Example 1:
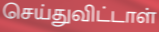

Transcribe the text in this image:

செய்துவிட்டாள்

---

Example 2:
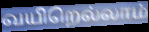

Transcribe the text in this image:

வயிறெல்லாம்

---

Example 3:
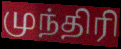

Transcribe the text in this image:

முந்திரி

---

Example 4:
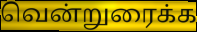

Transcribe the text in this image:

வென்றுரைக்க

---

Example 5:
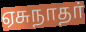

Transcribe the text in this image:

ஏசுநாதர்